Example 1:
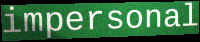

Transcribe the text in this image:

impersonal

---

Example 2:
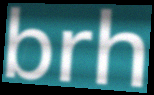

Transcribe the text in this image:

brh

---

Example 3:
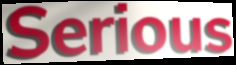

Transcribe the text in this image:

Serious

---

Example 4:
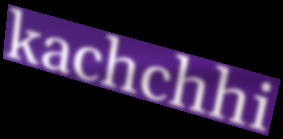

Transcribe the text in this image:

kachchhi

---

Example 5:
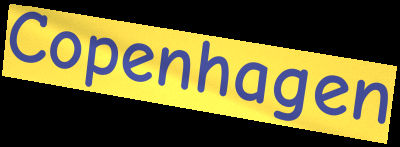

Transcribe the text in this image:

Copenhagen